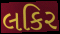
લકિર